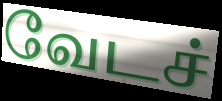
வேடச்